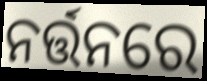
ନର୍ତ୍ତନରେ